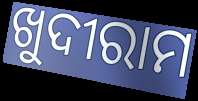
ଖୁଦୀରାମ